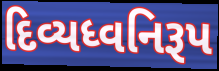
દિવ્યધ્વનિરૂપ